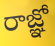
రాజ్ఞో